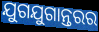
ଯୁଗଯୁଗାନ୍ତରର